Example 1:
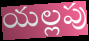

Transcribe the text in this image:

యల్లపు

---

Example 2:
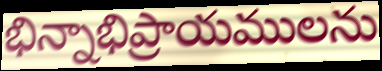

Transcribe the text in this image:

భిన్నాభిప్రాయములను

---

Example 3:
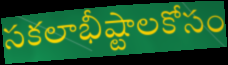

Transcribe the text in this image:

సకలాభీష్టాలకోసం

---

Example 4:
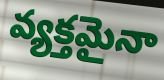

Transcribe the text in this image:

వ్యక్తమైనా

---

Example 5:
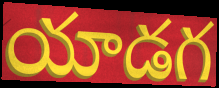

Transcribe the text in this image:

యాడగ